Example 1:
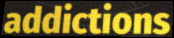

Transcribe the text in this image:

addictions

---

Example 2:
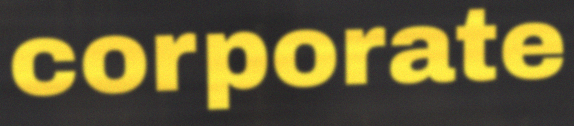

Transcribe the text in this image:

corporate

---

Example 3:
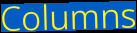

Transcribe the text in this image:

Columns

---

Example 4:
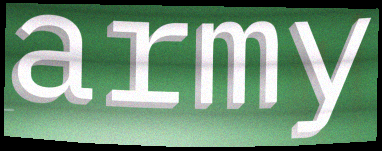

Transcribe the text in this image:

army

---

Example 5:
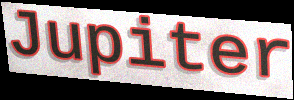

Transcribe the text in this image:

Jupiter